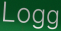
Logg